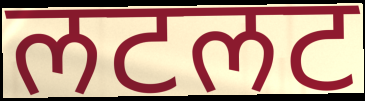
लटलट